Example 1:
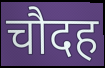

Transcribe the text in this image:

चौदह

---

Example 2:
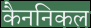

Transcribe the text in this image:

कैननिकल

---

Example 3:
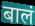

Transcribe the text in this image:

बालं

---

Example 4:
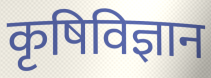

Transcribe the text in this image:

कृषिविज्ञान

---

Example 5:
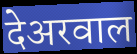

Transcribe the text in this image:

देअरवाल